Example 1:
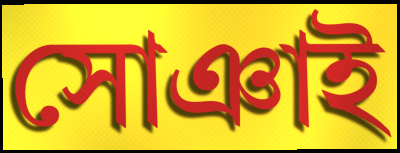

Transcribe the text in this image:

সোঞাই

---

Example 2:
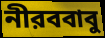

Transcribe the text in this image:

নীরববাবু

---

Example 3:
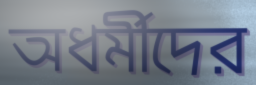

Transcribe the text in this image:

অধর্মীদের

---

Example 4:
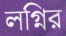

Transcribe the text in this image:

লগ্নির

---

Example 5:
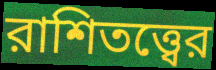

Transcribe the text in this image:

রাশিতত্ত্বের